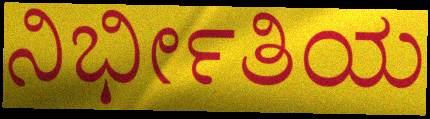
ನಿರ್ಭೀತಿಯ